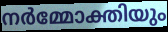
നർമ്മോക്തിയും